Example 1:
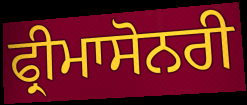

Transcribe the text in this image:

ਫ੍ਰੀਮਾਸੋਨਰੀ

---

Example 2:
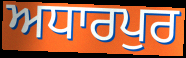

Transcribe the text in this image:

ਅਧਾਰਪੁਰ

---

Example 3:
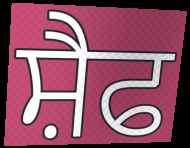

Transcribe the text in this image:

ਸ਼ੈਫ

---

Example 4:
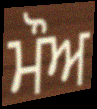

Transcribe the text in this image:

ਮੌਅ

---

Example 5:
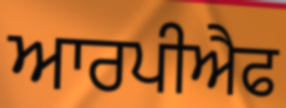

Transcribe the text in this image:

ਆਰਪੀਐਫ